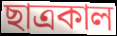
ছাত্রকাল